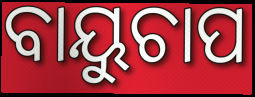
ବାୟୁଚାପ